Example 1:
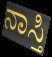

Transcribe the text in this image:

ನಾಸ್ತಿ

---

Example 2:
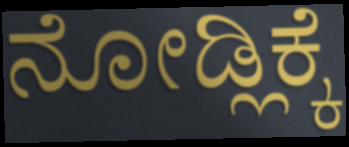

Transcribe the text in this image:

ನೋಡ್ಲಿಕ್ಕೆ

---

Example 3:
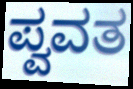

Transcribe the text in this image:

ಪ್ವವತ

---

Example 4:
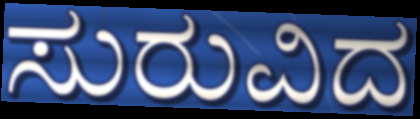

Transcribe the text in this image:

ಸುರುವಿದ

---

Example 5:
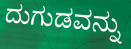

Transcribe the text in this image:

ದುಗುಡವನ್ನು